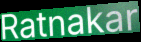
Ratnakar